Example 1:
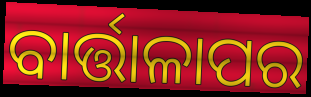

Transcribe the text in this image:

ବାର୍ତ୍ତାଳାପର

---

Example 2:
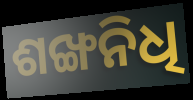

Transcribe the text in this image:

ଶଙ୍ଖନିଧି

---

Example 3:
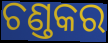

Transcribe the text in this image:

ଚଣ୍ଡକର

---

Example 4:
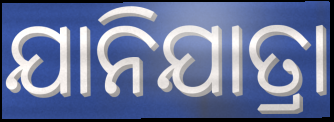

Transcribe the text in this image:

ଯାନିଯାତ୍ରା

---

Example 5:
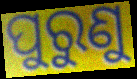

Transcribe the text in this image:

ପୁରୁଣୁ